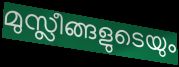
മുസ്ലീങ്ങളുടെയും